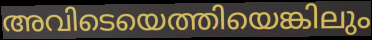
അവിടെയെത്തിയെങ്കിലും